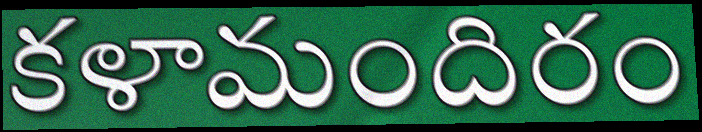
కళామందిరం